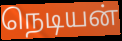
நெடியன்